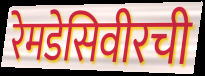
रेमडेसिवीरची